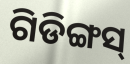
ଗିଡିଙ୍ଗସ୍